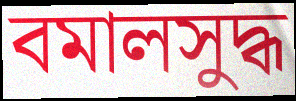
বমালসুদ্ধ